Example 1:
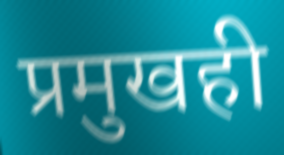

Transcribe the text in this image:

प्रमुखही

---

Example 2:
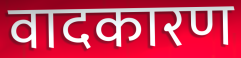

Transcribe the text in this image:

वादकारण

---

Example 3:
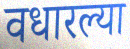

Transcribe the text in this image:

वधारल्या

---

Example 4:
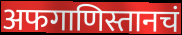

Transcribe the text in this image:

अफगाणिस्तानचं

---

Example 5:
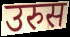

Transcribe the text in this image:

उरुस